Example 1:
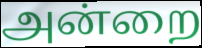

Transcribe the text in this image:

அன்றை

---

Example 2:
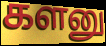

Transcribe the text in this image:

களனு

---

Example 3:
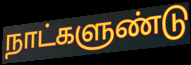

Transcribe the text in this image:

நாட்களுண்டு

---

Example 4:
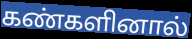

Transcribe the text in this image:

கண்களினால்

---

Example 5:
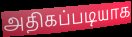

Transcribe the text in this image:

அதிகப்படியாக